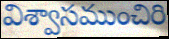
విశ్వాసముంచిరి